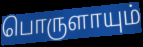
பொருளாயும்